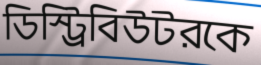
ডিস্ট্রিবিউটরকে